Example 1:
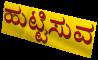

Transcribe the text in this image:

ಹುಟ್ಟಿಸುವ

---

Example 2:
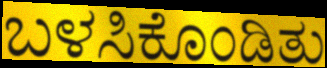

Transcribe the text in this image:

ಬಳಸಿಕೊಂಡಿತು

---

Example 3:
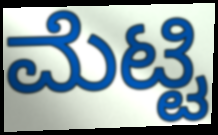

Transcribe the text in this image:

ಮೆಟ್ಟಿ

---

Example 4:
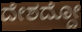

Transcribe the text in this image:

ದೇಶದ್ದೋ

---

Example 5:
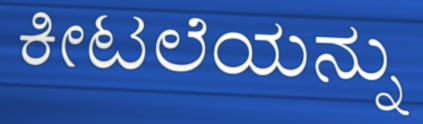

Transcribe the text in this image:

ಕೀಟಲೆಯನ್ನು